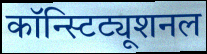
कॉन्स्टिट्यूशनल